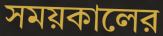
সময়কালের